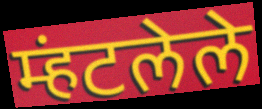
म्हंटलेले